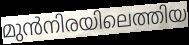
മുൻനിരയിലെത്തിയ